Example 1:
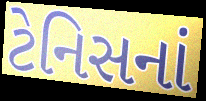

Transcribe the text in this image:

ટેનિસનાં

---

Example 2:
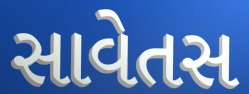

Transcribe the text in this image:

સાવેતસ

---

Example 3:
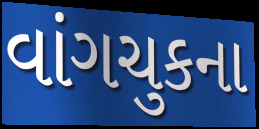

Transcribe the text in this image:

વાંગચુકના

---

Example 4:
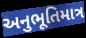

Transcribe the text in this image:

અનુભૂતિમાત્ર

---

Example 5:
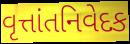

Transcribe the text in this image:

વૃત્તાંતનિવેદક